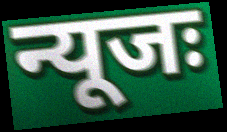
न्यूजः